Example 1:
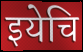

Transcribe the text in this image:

इयेचि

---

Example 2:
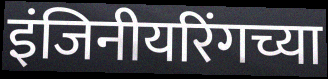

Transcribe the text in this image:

इंजिनीयरिंगच्या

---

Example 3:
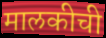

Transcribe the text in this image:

मालकीची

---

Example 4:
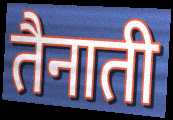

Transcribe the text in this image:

तैनाती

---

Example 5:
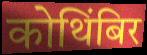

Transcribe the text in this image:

कोथिंबिर